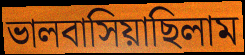
ভালবাসিয়াছিলাম